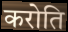
करोति